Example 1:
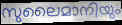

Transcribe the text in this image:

സുലൈമാനിയും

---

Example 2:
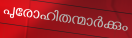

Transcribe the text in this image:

പുരോഹിതന്മാർക്കും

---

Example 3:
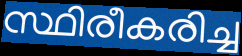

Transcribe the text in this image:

സ്ഥിരീകരിച്ച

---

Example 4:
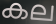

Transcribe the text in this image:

കല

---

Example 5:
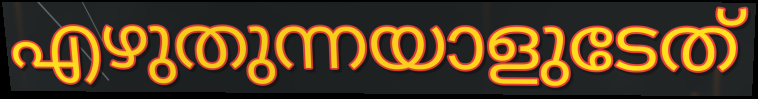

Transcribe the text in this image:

എഴുതുന്നയാളുടേത്